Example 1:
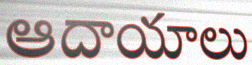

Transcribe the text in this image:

ఆదాయాలు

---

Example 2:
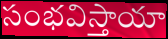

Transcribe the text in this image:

సంభవిస్తాయా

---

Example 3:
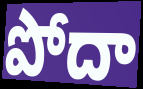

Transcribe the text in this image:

పోదా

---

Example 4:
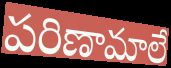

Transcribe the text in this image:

పరిణామాలే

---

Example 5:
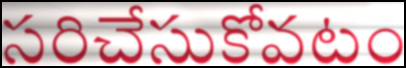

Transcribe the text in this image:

సరిచేసుకోవటం